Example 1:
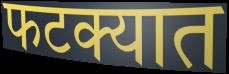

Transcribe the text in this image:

फटक्यात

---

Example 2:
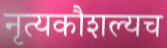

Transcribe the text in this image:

नृत्यकौशल्यच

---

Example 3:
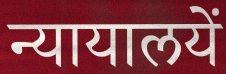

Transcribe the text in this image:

न्यायालयें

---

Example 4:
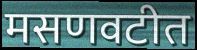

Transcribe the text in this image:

मसणवटीत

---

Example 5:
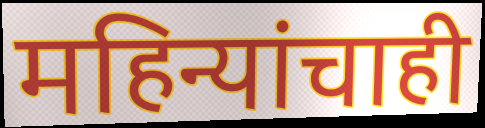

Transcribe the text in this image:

महिन्यांचाही